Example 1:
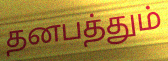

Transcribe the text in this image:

தனபத்தும்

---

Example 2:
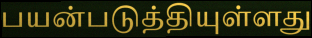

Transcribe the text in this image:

பயன்படுத்தியுள்ளது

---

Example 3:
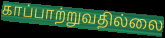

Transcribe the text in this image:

காப்பாற்றுவதில்லை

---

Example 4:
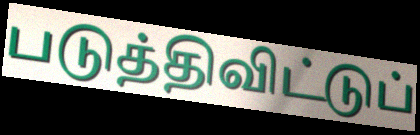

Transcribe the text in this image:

படுத்திவிட்டுப்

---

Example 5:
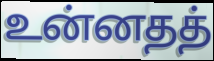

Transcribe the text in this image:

உன்னதத்